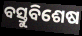
ବସ୍ତୁବିଶେଷ